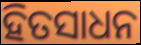
ହିତସାଧନ